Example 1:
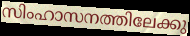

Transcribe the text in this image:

സിംഹാസനത്തിലേക്കു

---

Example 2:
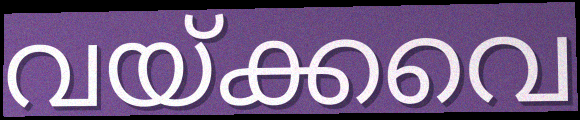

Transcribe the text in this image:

വയ്ക്കവെ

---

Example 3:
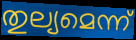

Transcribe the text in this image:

തുല്യമെന്ന്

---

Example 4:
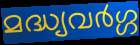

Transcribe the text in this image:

മദ്ധ്യവർഗ്ഗ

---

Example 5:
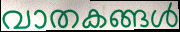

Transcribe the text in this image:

വാതകങ്ങൾ